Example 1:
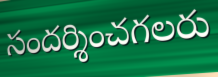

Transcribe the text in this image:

సందర్శించగలరు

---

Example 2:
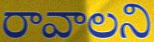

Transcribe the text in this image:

రావాలని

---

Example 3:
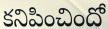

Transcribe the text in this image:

కనిపించిందో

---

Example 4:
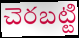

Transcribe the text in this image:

చెరబట్టి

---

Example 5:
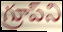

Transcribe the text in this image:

గ్రూప్‌ని